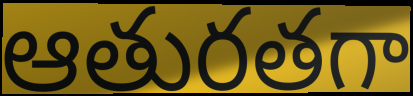
ఆతురతగా